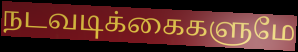
நடவடிக்கைகளுமே